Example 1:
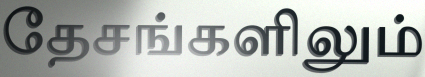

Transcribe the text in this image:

தேசங்களிலும்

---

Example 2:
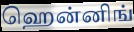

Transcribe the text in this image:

ஹென்னிங்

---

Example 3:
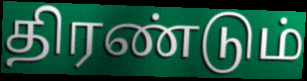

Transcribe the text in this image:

திரண்டும்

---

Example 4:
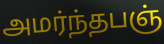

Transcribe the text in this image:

அமர்ந்தபஞ்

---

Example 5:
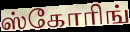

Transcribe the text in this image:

ஸ்கோரிங்